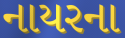
નાયરના